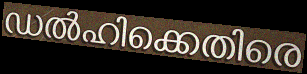
ഡൽഹിക്കെതിരെ